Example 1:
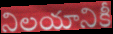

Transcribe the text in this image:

నిలయానికీ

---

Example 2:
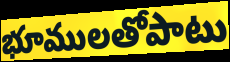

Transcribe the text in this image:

భూములతోపాటు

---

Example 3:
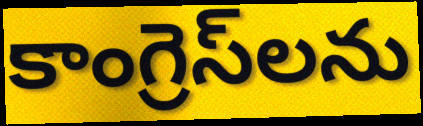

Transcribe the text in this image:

కాంగ్రెస్‌లను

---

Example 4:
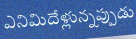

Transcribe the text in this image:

ఎనిమిదేళ్లున్నప్పుడు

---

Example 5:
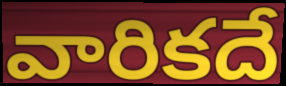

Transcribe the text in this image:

వారికదే